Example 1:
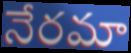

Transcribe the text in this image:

నేరమా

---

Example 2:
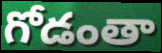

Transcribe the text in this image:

గోడంతా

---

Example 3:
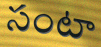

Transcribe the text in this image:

సంటా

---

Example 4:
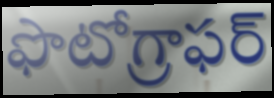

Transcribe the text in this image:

ఫొటోగ్రాఫర్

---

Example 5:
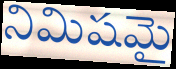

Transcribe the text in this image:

నిమిషమై